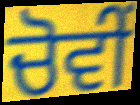
ਚੋਵੀਂ